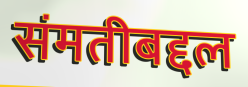
संमतीबद्दल